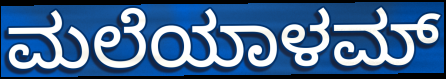
ಮಲೆಯಾಳಮ್